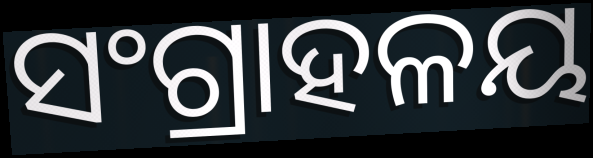
ସଂଗ୍ରାହଳୟ